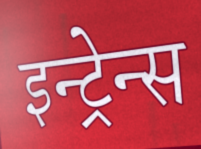
इन्ट्रेन्स